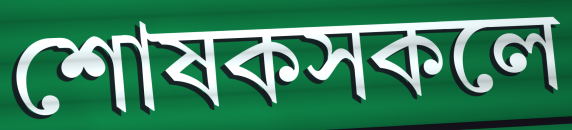
শোষকসকলে